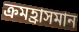
ক্রমহ্রাসমান